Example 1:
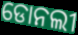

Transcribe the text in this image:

ଡୋନଲୀ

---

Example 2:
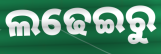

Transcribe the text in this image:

ଲଢେଇରୁ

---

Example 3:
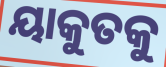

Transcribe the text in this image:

ୟାକୁତକୁ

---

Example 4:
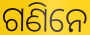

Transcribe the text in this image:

ଗଣିନେ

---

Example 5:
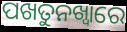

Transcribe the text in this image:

ପଖତୁନଖ୍ୱାରେ